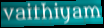
vaithiyam